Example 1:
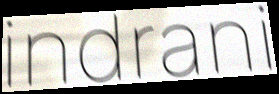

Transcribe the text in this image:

indrani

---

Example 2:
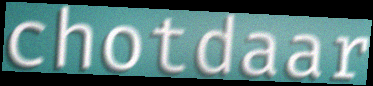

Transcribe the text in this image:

chotdaar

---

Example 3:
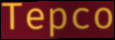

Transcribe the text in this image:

Tepco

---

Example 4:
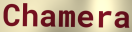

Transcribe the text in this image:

Chamera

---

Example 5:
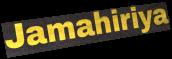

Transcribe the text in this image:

Jamahiriya